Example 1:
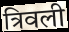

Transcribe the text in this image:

त्रिवली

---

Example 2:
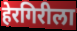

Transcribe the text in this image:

हेरगिरीला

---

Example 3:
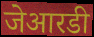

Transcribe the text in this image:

जेआरडी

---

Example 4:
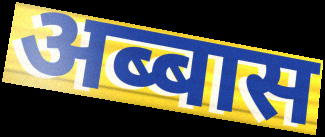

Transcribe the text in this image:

अब्बास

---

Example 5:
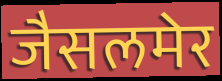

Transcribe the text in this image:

जैसलमेर